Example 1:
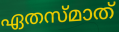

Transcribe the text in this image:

ഏതസ്മാത്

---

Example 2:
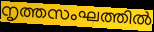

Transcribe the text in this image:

നൃത്തസംഘത്തിൽ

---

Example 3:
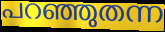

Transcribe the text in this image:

പറഞ്ഞുതന്ന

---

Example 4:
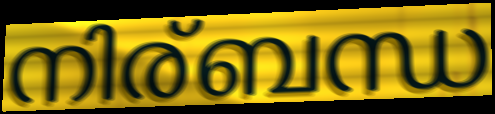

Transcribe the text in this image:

നിര്ബന്ധ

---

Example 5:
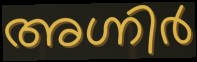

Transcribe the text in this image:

അഗ്നിർ